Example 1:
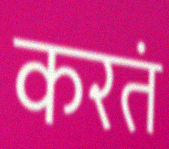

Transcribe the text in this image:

करतं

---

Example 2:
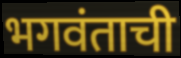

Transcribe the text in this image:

भगवंताची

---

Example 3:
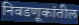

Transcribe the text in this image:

निवडणूकांतील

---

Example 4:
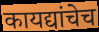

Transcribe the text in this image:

कायद्यांचेच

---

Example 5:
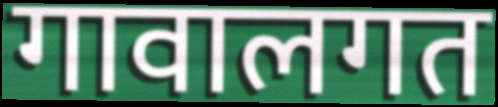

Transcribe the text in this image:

गावालगत